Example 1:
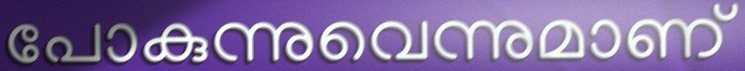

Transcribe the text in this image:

പോകുന്നുവെന്നുമാണ്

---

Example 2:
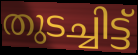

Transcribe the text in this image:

തുടച്ചിട്ട്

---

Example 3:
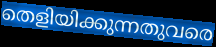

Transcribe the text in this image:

തെളിയിക്കുന്നതുവരെ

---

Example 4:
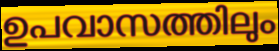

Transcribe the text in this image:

ഉപവാസത്തിലും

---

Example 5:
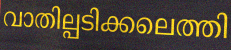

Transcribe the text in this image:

വാതില്പടിക്കലെത്തി